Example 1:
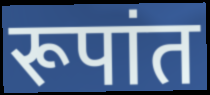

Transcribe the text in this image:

रूपांत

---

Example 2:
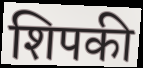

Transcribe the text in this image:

शिपकी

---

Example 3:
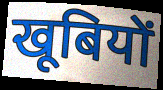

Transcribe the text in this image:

खूबियों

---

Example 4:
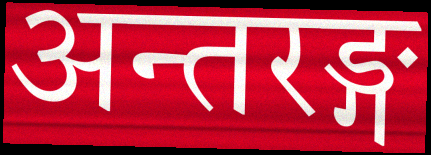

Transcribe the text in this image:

अन्तरङ्ग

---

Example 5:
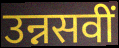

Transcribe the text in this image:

उन्नसवीं